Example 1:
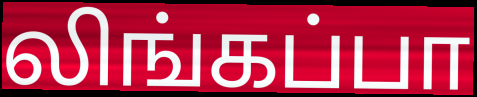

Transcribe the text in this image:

லிங்கப்பா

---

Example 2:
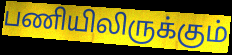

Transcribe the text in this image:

பணியிலிருக்கும்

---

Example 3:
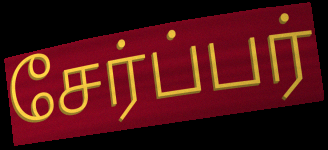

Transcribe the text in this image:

சேர்ப்பர்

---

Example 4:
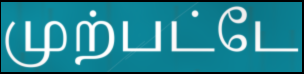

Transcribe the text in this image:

முற்பட்டே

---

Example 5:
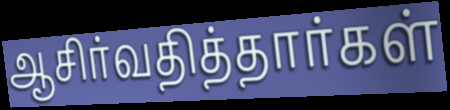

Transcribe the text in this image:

ஆசிர்வதித்தார்கள்